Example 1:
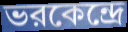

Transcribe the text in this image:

ভরকেন্দ্রে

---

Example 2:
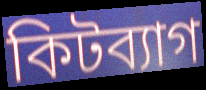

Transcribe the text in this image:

কিটব্যাগ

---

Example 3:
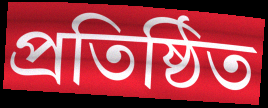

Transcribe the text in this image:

প্রতিষ্ঠিত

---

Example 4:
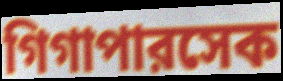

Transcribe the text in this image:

গিগাপারসেক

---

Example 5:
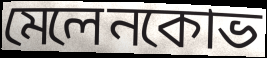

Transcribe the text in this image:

মেলেনকোভ